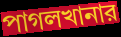
পাগলখানার